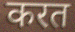
करत